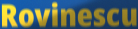
Rovinescu